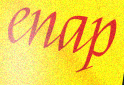
enap